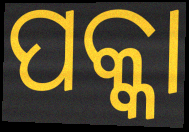
ପକ୍କା